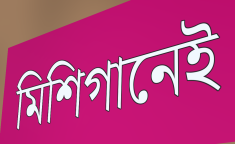
মিশিগানেই